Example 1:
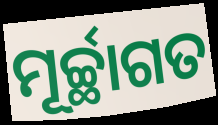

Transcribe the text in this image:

ମୂର୍ଚ୍ଛାଗତ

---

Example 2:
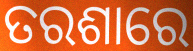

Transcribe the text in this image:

ତରଶାରେ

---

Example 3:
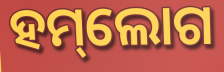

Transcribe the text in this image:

ହମ୍‌ଲୋଗ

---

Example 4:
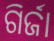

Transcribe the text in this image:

ଗିର୍ଜା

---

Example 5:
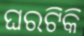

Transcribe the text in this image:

ଘରଟିକି